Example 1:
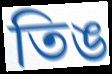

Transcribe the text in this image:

তিঙ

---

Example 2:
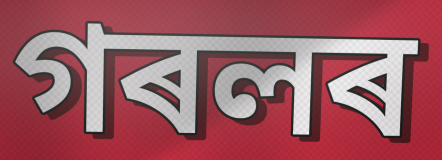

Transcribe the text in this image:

গৰলৰ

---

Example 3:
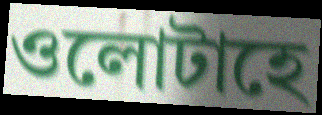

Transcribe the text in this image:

ওলোটাহে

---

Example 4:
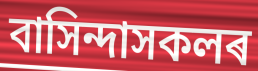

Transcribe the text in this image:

বাসিন্দাসকলৰ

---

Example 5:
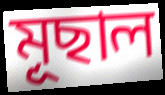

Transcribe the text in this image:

মূছাল